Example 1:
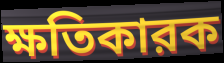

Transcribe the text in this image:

ক্ষতিকারক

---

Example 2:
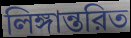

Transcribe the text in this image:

লিঙ্গান্তরিত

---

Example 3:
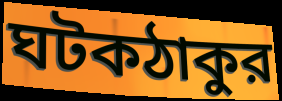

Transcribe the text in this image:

ঘটকঠাকুর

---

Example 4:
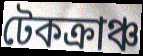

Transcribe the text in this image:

টেকক্রাঞ্চ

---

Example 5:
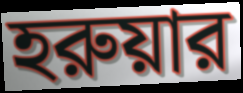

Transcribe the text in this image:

হরুয়ার